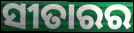
ସୀତାରର